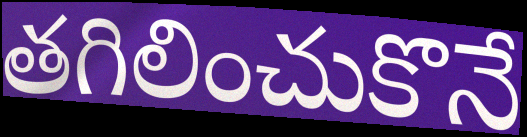
తగిలించుకొనే